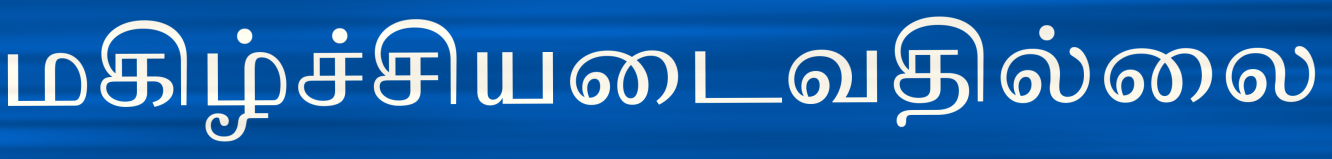
மகிழ்ச்சியடைவதில்லை